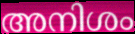
അനിശം